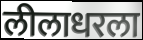
लीलाधरला